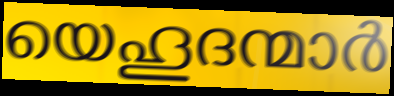
യെഹൂദന്മാർ